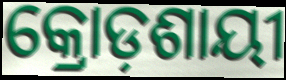
କ୍ରୋଡ଼ଶାୟୀ